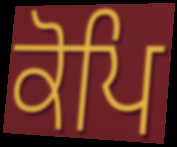
ਕੋਪਿ